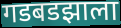
गडबडझाला